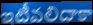
ఇటీవలిదాకా